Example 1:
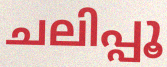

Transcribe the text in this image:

ചലിപ്പൂ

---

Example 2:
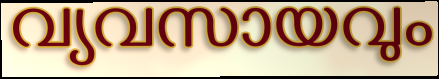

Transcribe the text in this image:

വ്യവസായവും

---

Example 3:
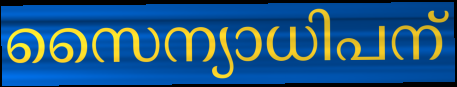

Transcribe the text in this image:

സൈന്യാധിപന്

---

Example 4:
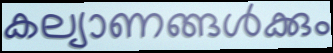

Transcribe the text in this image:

കല്യാണങ്ങൾക്കും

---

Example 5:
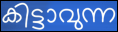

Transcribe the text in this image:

കിട്ടാവുന്ന